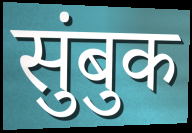
सुंबुक